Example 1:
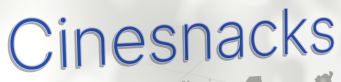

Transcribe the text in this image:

Cinesnacks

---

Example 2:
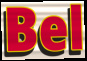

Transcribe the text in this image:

Bel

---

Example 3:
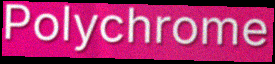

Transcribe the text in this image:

Polychrome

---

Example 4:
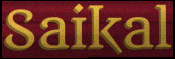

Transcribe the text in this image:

Saikal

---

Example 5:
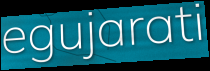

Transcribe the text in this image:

egujarati